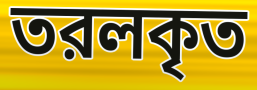
তরলকৃত